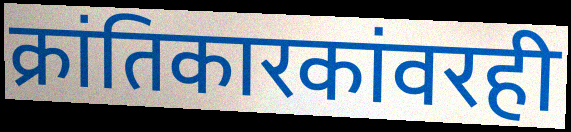
क्रांतिकारकांवरही